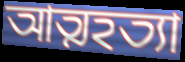
আত্মহত্যা